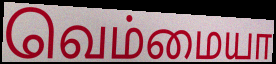
வெம்மையா